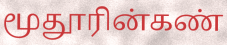
மூதூரின்கண்